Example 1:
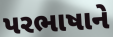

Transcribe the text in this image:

પરભાષાને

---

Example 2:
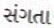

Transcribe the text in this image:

સંગતા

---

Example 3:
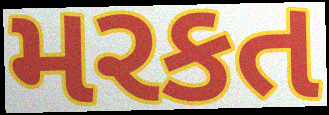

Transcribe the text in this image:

મરકત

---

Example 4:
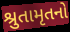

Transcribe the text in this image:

શ્રુતામૃતનો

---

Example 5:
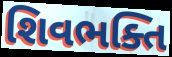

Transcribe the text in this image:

શિવભક્તિ